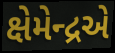
ક્ષેમેન્દ્રએ